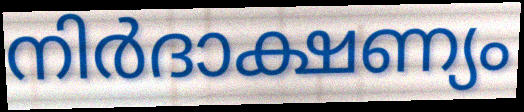
നിർദാക്ഷണ്യം